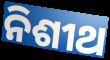
ନିଶୀଥ